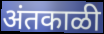
अंतकाळी